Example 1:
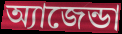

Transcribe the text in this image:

অ্যাজেন্ডা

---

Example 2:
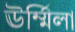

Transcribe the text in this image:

ঊর্ম্মিলা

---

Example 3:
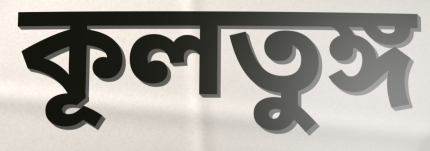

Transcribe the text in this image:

কূলতুঙ্গ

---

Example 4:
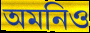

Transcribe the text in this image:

অমনিও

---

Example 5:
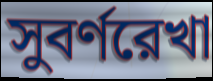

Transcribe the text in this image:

সুবর্ণরেখা